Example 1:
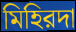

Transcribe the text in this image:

মিহিরদা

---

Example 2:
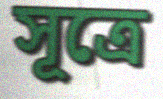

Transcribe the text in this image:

সূত্রে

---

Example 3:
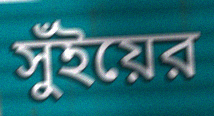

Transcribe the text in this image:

সুঁইয়ের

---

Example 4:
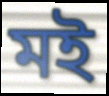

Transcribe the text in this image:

মই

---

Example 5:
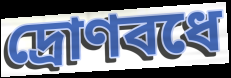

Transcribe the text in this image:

দ্রোণবধে